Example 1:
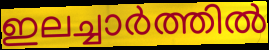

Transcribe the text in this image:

ഇലച്ചാർത്തിൽ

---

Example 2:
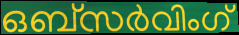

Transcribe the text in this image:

ഒബ്സർവിംഗ്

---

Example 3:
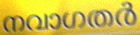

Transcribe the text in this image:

നവാഗതർ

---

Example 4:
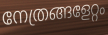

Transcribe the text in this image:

നേത്രങ്ങളേറ്റം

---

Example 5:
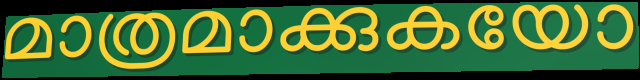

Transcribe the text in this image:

മാത്രമാക്കുകയോ